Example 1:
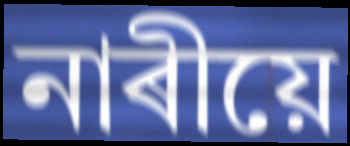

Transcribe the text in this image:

নাৰীয়ে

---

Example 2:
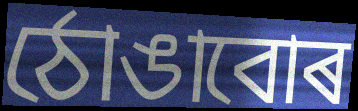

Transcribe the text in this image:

ঠোঙাবোৰ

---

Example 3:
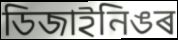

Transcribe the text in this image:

ডিজাইনিঙৰ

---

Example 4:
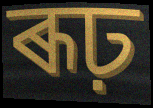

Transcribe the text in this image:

ৰূঢ়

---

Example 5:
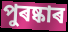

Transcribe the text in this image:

পুৰষ্কাৰ